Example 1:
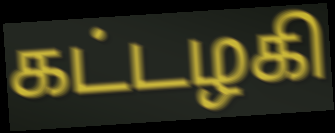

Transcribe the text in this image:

கட்டழகி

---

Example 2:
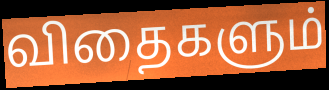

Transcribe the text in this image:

விதைகளும்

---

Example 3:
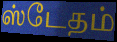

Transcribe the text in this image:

ஸ்டேதம்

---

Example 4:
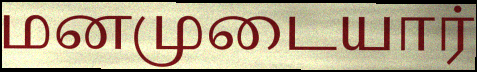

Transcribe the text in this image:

மனமுடையார்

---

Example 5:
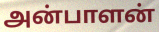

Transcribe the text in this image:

அன்பாளன்